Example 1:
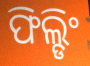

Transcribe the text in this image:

ଫିଲ୍ଡିଂ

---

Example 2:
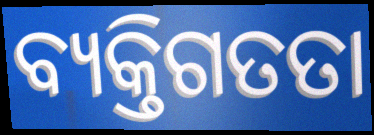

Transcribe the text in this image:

ବ୍ୟକ୍ତିଗତତା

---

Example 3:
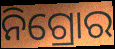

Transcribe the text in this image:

ନିଗ୍ରୋର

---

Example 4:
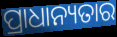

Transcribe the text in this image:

ପ୍ରାଧାନ୍ୟତାର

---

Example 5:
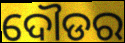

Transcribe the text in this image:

ଦୌଡର